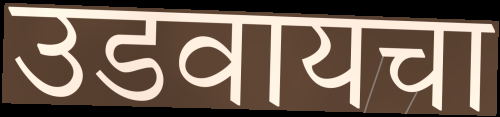
उडवायचा